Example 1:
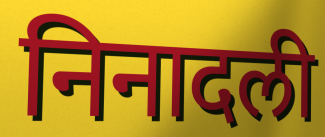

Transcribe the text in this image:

निनादली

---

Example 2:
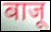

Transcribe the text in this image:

बाजू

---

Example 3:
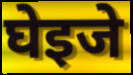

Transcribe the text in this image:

घेइजे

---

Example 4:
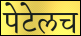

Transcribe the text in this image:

पेटेलच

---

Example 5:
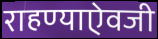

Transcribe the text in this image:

राहण्याऐवजी